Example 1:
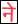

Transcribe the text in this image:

ने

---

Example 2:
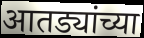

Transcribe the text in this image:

आतड्यांच्या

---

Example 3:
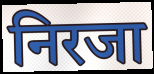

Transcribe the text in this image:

निरजा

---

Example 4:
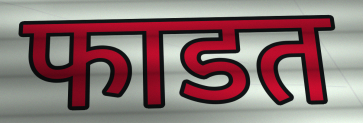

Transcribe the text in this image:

फाडत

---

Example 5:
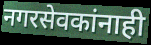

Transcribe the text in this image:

नगरसेवकांनाही